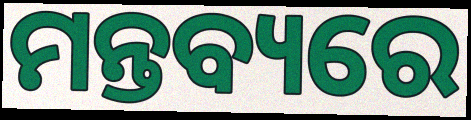
ମନ୍ତବ୍ୟରେ